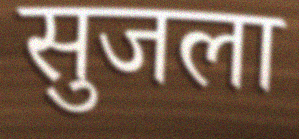
सुजला